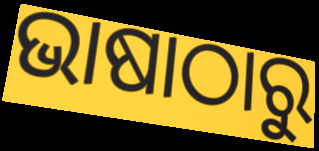
ଭାଷାଠାରୁ